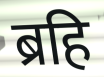
ब्रहि